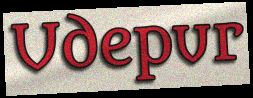
Udepur